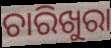
ଚାରିଖୁରା